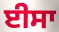
ਈਸਾ